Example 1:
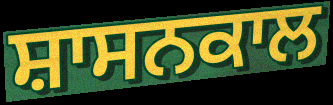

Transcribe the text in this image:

ਸ਼ਾਸਨਕਾਲ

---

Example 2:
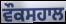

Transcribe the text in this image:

ਵੌਕਸਹਾਲ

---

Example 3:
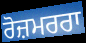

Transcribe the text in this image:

ਰੋਜ਼ਮਰਰਾ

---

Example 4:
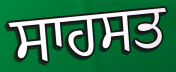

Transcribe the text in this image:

ਸਾਹਸਤ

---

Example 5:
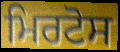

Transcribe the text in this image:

ਮਿਰਟੋਸ